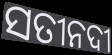
ସତୀନଦୀ